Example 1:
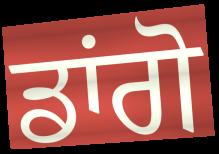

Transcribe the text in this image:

ਡਾਂਗੋ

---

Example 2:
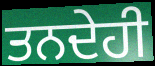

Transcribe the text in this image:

ਤਨਦੇਹੀ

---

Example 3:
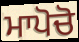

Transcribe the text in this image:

ਮਾਪੋਚੋ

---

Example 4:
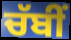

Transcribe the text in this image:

ਚੱਬੀਂ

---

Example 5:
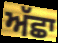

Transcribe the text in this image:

ਅੱਛਾ